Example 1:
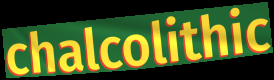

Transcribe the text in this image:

chalcolithic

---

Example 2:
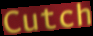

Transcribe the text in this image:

Cutch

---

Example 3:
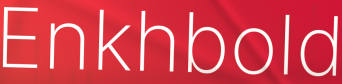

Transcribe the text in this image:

Enkhbold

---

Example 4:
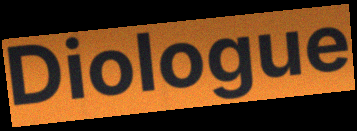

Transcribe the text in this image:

Diologue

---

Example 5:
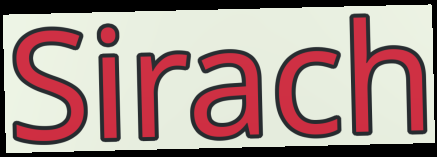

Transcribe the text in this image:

Sirach